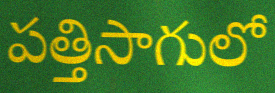
పత్తిసాగులో